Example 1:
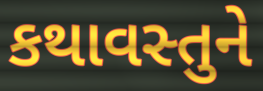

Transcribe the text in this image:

કથાવસ્તુને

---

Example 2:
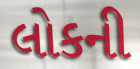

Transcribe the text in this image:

લોકની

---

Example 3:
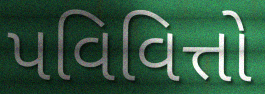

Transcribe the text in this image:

પવિવિત્તો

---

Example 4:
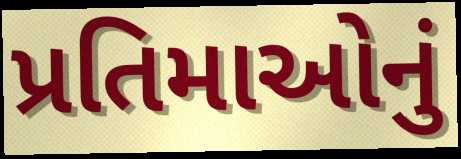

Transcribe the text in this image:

પ્રતિમાઓનું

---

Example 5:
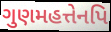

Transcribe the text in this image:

ગુણમહત્તેનપિ